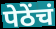
पेठेंचं